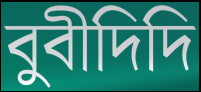
বুবীদিদি